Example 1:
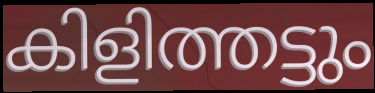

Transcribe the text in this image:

കിളിത്തട്ടും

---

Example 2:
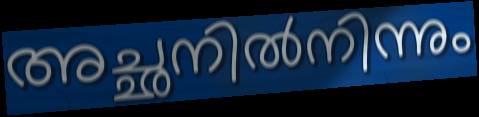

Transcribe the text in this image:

അച്ഛനിൽനിന്നും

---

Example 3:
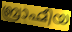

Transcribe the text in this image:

ബ്രാഹ്മീയ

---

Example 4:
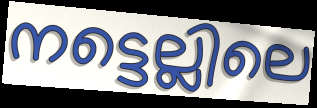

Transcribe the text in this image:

നട്ടെല്ലിലെ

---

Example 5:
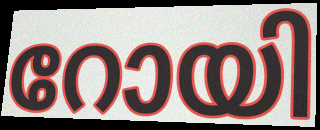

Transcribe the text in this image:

റോയി